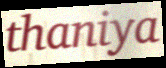
thaniya